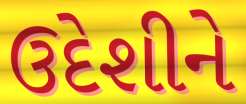
ઉદેશીને